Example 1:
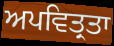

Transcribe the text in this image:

ਅਪਵਿਤ੍ਰਤਾ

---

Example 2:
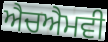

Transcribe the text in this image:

ਐਚਐਮਵੀ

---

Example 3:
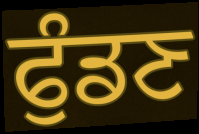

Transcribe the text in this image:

ਫੁੰਡਣ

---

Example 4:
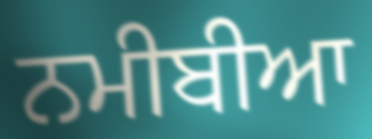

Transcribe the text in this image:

ਨਮੀਬੀਆ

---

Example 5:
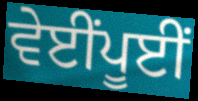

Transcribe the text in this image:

ਵੇਈਂਪੂਈਂ